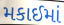
મકાઈમાં